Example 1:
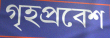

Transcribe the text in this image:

গৃহপ্রবেশ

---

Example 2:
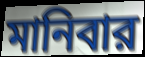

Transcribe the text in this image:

মানিবার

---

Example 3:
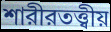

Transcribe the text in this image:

শারীরতত্ত্বীয়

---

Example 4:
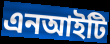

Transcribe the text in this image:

এনআইটি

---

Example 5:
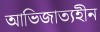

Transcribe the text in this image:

আভিজাত্যহীন